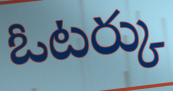
ఓటర్కు